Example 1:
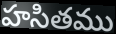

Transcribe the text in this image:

హసితము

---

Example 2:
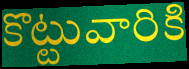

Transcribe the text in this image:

కొట్టువారికి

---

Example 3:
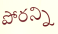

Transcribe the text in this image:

పోరన్ని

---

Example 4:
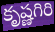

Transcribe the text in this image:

కృష్ణగిరి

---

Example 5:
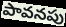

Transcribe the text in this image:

పావనపు